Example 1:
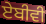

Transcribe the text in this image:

ਏਬੀਵੀ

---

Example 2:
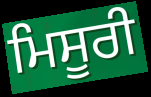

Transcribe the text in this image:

ਮਿਸੂਰੀ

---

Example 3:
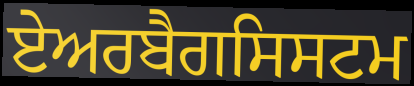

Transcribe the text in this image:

ਏਅਰਬੈਗਸਿਸਟਮ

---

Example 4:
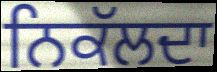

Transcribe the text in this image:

ਨਿਕੱਲਦਾ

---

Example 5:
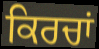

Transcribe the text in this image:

ਕਿਰਚਾਂ